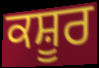
ਕਸ਼ੂਰ